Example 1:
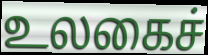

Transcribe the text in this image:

உலகைச்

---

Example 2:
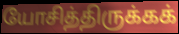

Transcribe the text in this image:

யோசித்திருக்கக்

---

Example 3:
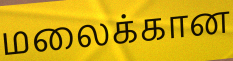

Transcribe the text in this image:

மலைக்கான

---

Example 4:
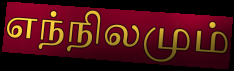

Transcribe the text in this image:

எந்நிலமும்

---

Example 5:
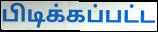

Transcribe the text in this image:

பிடிக்கப்பட்ட